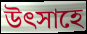
উত্‍সাহে